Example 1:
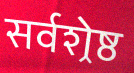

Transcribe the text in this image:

सर्वश्रेष्ठ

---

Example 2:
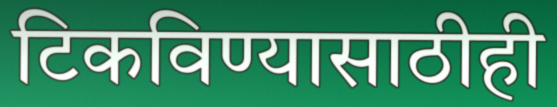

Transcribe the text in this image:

टिकविण्यासाठीही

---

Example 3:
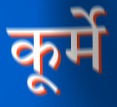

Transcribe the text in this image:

कूर्मे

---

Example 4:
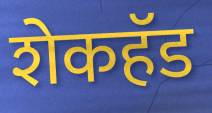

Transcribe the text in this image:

शेकहॅड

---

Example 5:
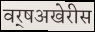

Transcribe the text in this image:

वर्षअखेरीस